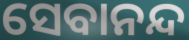
ସେବାନନ୍ଦ